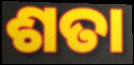
ଶତା